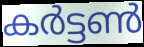
കർട്ടൺ